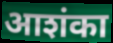
आशंका